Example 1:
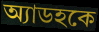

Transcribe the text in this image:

অ্যাডহকে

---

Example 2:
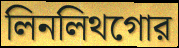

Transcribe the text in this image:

লিনলিথগোর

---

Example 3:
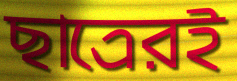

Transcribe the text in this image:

ছাত্রেরই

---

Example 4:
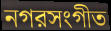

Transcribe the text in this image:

নগরসংগীত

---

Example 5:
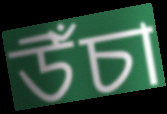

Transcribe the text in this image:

উঁচা